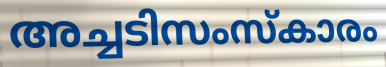
അച്ചടിസംസ്കാരം